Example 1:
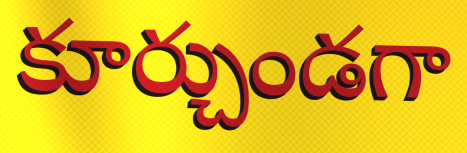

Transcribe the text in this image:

కూర్చుండగా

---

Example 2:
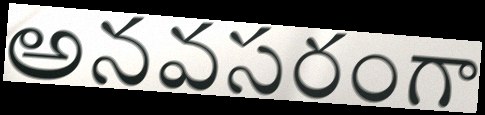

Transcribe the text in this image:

అనవసరంగా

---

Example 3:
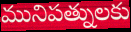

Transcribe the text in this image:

మునిపత్నులకు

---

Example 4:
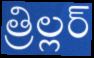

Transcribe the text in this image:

త్రిల్లర్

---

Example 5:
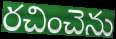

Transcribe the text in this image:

రచించెను